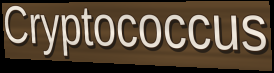
Cryptococcus